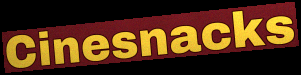
Cinesnacks